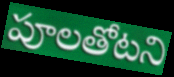
పూలతోటని